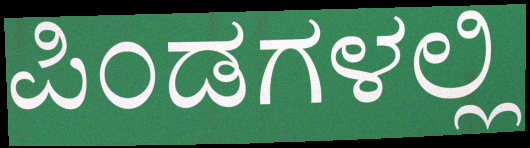
ಪಿಂಡಗಳಲ್ಲಿ